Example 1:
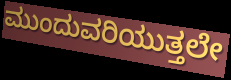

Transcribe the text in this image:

ಮುಂದುವರಿಯುತ್ತಲೇ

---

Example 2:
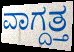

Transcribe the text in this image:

ವಾಗ್ದತ್ತ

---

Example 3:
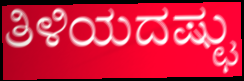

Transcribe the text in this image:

ತಿಳಿಯದಷ್ಟು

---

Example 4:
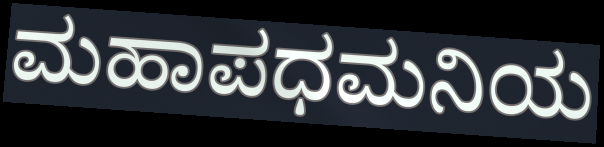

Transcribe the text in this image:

ಮಹಾಪಧಮನಿಯ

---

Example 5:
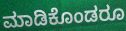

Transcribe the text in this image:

ಮಾಡಿಕೊಂಡರೂ